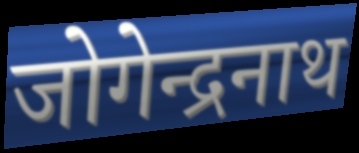
जोगेन्द्रनाथ